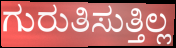
ಗುರುತಿಸುತ್ತಿಲ್ಲ